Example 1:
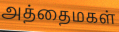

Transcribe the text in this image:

அத்தைமகள்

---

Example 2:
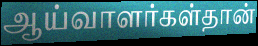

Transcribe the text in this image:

ஆய்வாளர்கள்தான்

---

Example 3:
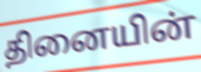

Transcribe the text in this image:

தினையின்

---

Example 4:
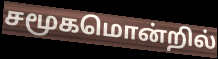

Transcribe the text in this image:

சமூகமொன்றில்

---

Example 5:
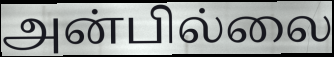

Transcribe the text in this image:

அன்பில்லை